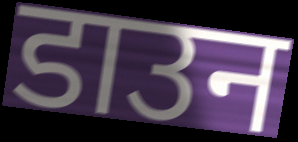
डाउन